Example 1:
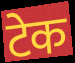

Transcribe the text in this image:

टेक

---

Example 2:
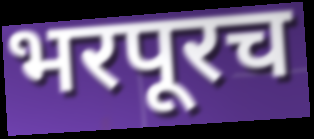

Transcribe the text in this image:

भरपूरच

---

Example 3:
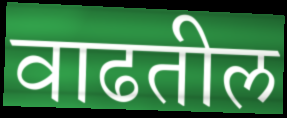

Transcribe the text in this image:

वाढतील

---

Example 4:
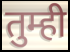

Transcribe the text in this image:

तुम्ही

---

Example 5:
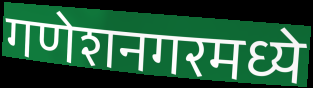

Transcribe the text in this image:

गणेशनगरमध्ये